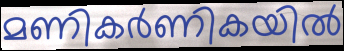
മണികർണികയിൽ